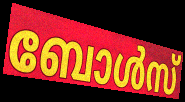
ബോൾസ്